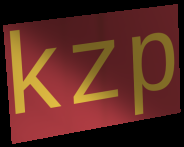
kzp